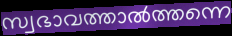
സ്വഭാവത്താൽത്തന്നെ